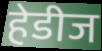
हेडीज